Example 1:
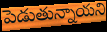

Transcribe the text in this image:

పెడుతున్నాయని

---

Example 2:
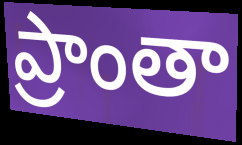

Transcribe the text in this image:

ప్రాంతా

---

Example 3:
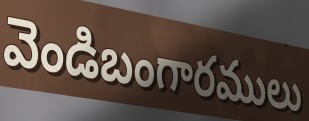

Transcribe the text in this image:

వెండిబంగారములు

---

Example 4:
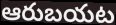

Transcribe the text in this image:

ఆరుబయట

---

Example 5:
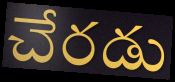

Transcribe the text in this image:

చేరడు